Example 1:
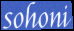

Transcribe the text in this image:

sohoni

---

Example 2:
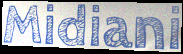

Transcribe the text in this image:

Midiani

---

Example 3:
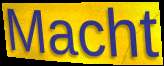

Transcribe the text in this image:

Macht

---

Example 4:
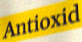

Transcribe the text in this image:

Antioxid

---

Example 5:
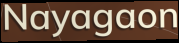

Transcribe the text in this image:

Nayagaon